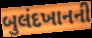
બુલંદખાનની